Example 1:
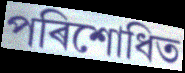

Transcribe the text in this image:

পৰিশোধিত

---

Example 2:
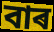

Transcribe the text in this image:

বাৰ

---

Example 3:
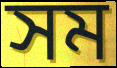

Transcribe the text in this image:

সম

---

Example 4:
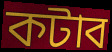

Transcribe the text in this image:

কটাব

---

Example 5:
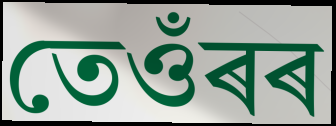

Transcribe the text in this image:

তেওঁৰৰ